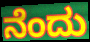
ನೆಂದು